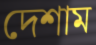
দেশাম